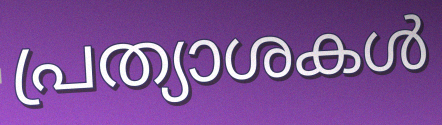
പ്രത്യാശകൾ